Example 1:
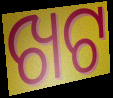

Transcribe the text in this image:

ଖଟ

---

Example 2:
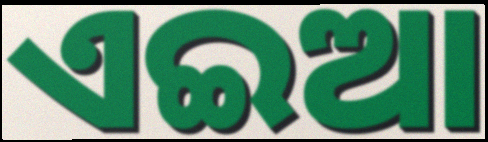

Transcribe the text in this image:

ଏଇଆ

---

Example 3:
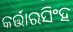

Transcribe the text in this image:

କର୍ତ୍ତାରସିଂହ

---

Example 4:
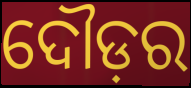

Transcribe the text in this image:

ଦୌଡ଼ର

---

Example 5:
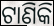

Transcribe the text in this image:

ଟାଣିକି